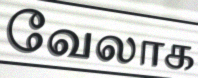
வேலாக